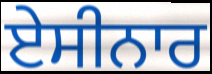
ਏਸੀਨਾਰ